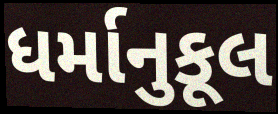
ધર્માનુકૂલ